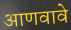
आणवावे